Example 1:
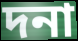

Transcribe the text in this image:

দনা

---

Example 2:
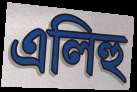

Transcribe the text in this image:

এলিহু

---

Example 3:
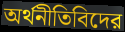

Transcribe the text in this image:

অর্থনীতিবিদের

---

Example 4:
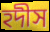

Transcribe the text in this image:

হদীস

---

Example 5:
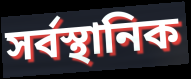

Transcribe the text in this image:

সর্বস্থানিক